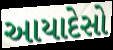
આયાદેસો